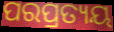
ପରପ୍ରତ୍ୟୟ